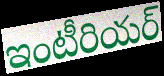
ఇంటీరియర్